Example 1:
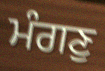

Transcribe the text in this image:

ਮੰਗਣੁ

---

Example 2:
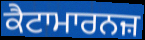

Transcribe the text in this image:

ਕੈਟਾਮਾਰਨਜ਼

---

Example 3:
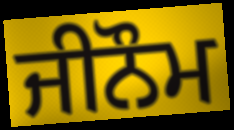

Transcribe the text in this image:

ਜੀਨੌਮ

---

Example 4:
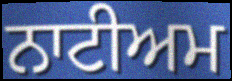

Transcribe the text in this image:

ਨਾਟੀਅਮ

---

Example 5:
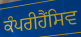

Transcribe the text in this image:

ਕੰਪਰੀਹੈਂਸਿਵ